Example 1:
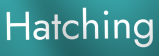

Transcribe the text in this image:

Hatching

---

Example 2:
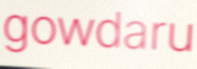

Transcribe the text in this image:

gowdaru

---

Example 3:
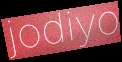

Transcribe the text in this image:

jodiyo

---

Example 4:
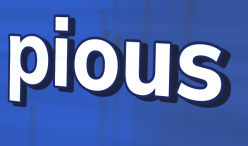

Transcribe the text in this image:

pious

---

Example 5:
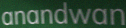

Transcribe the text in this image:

anandwan